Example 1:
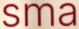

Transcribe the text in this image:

sma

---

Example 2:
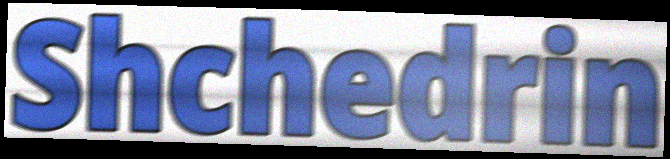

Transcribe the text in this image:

Shchedrin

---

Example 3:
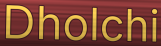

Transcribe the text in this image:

Dholchi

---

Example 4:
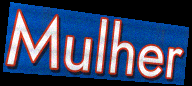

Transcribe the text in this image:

Mulher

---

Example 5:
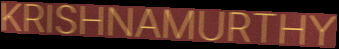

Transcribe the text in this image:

KRISHNAMURTHY